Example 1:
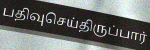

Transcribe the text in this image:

பதிவுசெய்திருப்பார்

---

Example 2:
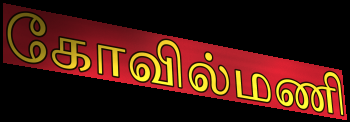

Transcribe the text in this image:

கோவில்மணி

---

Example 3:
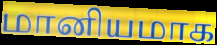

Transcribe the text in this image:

மானியமாக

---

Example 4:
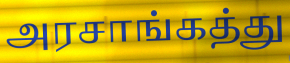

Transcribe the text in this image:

அரசாங்கத்து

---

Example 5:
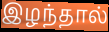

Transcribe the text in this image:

இழந்தால்